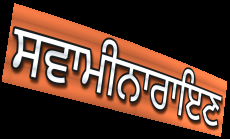
ਸਵਾਮੀਨਾਰਾਇਣ